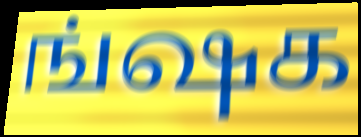
ங்ஷக